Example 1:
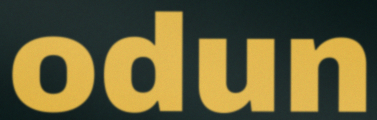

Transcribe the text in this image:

odun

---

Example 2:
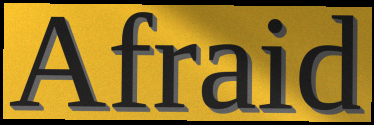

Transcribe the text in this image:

Afraid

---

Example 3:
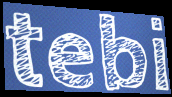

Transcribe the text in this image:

tebi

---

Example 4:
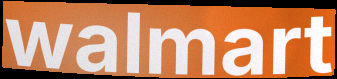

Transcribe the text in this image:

walmart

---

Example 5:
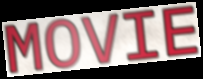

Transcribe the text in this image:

MOVIE